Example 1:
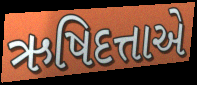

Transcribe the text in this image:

ઋષિદત્તાએ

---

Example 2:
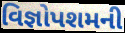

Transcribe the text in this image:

વિજ્ઞોપશમની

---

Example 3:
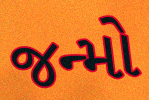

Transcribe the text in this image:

જન્મો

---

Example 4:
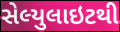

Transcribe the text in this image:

સેલ્યુલાઇટથી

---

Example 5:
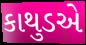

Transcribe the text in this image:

કાથુડએ